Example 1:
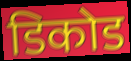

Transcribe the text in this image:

डिकोड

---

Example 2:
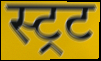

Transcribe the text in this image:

स्ट्रट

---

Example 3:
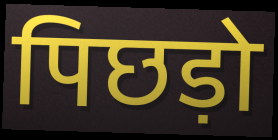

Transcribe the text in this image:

पिछड़ो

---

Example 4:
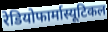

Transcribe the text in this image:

रेडियोफार्मास्यूटिकल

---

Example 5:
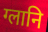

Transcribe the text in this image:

ग्लानि